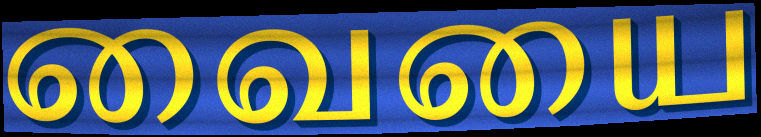
வையை